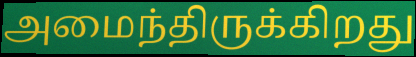
அமைந்திருக்கிறது